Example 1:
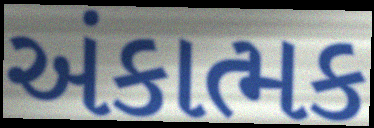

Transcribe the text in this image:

અંકાત્મક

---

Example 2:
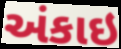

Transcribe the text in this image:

અંકાઇ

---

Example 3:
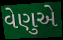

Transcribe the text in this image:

વેણુએ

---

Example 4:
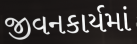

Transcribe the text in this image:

જીવનકાર્યમાં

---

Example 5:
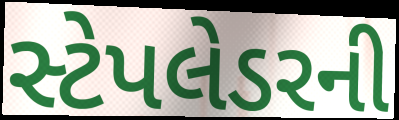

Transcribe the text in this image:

સ્ટેપલેડરની